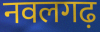
नवलगढ़